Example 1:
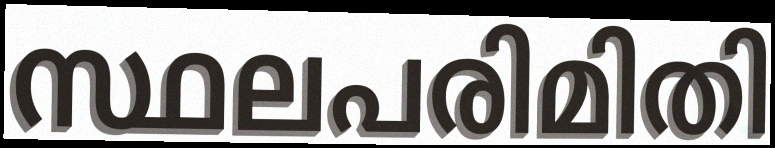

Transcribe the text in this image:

സ്ഥലപരിമിതി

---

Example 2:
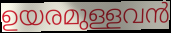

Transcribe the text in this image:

ഉയരമുള്ളവൻ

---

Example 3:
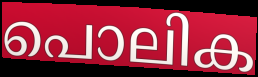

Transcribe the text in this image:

പൊലിക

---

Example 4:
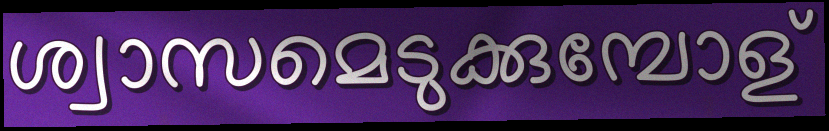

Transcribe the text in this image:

ശ്വാസമെടുക്കുമ്പോള്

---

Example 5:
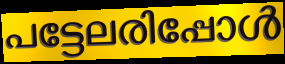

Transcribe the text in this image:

പട്ടേലരിപ്പോൾ